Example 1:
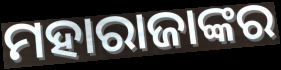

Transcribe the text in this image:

ମହାରାଜାଙ୍କର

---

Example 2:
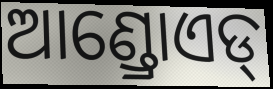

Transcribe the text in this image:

ଆଣ୍ଡ୍ରୋଏଡ୍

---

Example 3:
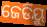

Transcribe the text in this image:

ଜେଡିୟୁ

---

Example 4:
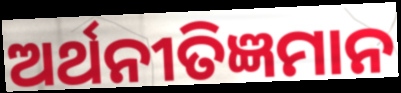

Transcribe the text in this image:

ଅର୍ଥନୀତିଜ୍ଞମାନ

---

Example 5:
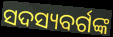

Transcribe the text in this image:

ସଦସ୍ୟବର୍ଗଙ୍କ